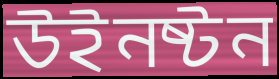
উইনষ্টন